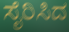
ಸೈರಿಸಿದ